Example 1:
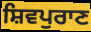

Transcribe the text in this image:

ਸ਼ਿਵਪੁਰਾਣ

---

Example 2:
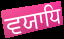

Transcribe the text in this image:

ਵਯਾਧਿ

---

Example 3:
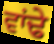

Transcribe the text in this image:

ਵਾਂਢੇ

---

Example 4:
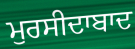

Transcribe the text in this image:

ਮੁਰਸੀਦਾਬਾਦ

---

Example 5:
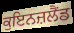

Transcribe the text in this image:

ਕੁਇਨਜ਼ਲੈਂਡ